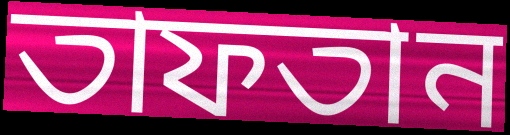
তাফতান